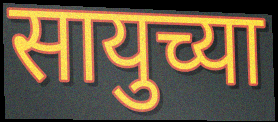
सायुच्या